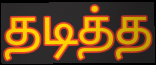
தடித்த